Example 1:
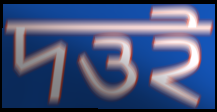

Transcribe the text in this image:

দত্তই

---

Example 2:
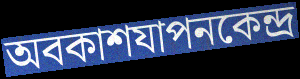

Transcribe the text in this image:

অবকাশযাপনকেন্দ্র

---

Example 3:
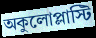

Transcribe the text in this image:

অকুলোপ্লাস্টি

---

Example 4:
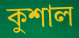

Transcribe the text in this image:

কুশাল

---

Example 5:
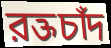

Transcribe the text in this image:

রক্তচাঁদ